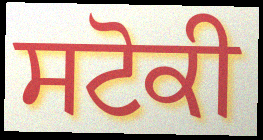
ਸਟੋਕੀ